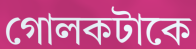
গোলকটাকে